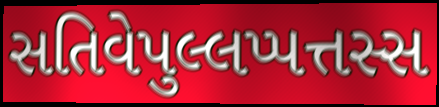
સતિવેપુલ્લપ્પત્તસ્સ